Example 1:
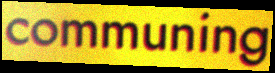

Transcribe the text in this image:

communing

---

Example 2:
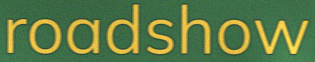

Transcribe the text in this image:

roadshow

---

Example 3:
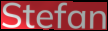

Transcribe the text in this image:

Stefan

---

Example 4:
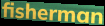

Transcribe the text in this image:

fisherman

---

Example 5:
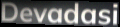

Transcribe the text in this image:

Devadasi